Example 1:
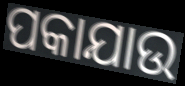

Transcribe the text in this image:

ପକାଯାଉ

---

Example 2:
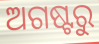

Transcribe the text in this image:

ଅଗଷ୍ଟରୁ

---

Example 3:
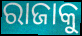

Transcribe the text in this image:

ରାଜାକୁ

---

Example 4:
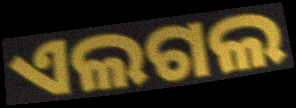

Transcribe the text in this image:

ଏଲଗଲ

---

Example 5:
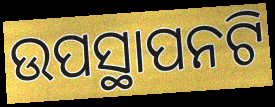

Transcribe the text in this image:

ଉପସ୍ଥାପନଟି